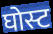
घोस्‍ट